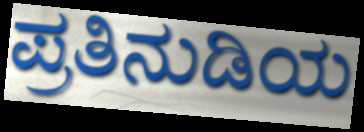
ಪ್ರತಿನುಡಿಯ